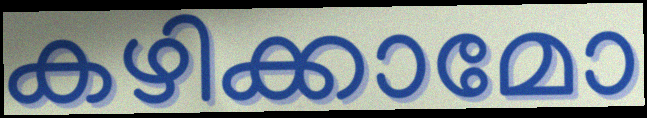
കഴിക്കാമോ